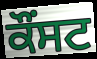
ਕੌਂਸਟ